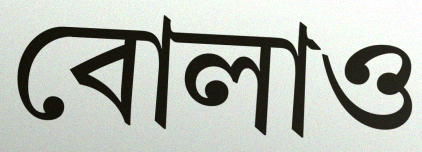
বোলাও